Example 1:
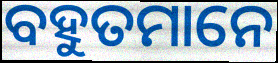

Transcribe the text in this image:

ବହୁତମାନେ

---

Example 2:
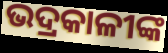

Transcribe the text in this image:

ଭଦ୍ରକାଳୀଙ୍କ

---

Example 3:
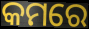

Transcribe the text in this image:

କମରେ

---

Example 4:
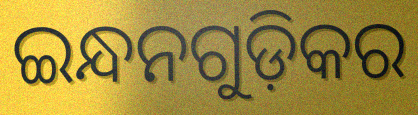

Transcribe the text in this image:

ଇନ୍ଧନଗୁଡ଼ିକର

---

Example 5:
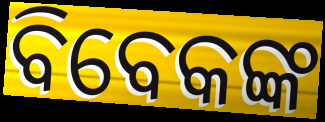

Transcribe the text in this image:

ବିବେକଙ୍କ